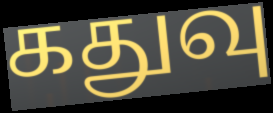
கதுவு